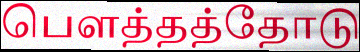
பௌத்தத்தோடு